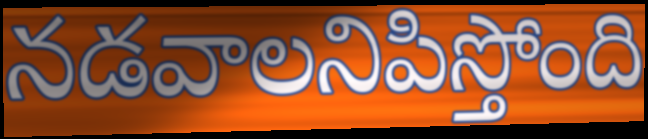
నడవాలనిపిస్తోంది